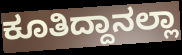
ಕೂತಿದ್ದಾನಲ್ಲಾ